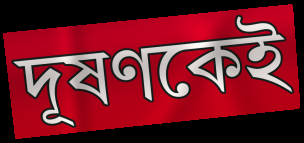
দূষণকেই